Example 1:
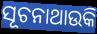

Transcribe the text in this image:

ସୂଚନାଥାଉକି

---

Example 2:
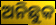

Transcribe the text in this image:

ଅନିଛୁକ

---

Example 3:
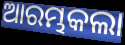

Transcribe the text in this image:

ଆରମ୍ଭକଲା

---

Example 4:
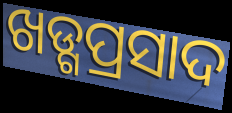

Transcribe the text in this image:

ଖଡ୍ଗପ୍ରସାଦ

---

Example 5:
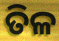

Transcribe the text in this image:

ତିଳ